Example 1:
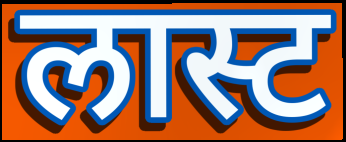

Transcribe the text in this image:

लास्ट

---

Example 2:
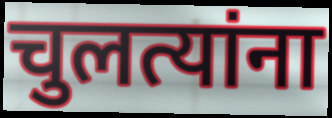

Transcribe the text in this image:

चुलत्यांना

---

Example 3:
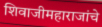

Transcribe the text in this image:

शिवाजीमहाराजांचे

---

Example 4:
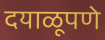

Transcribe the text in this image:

दयाळूपणे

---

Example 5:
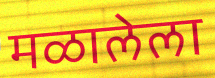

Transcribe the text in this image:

मळालेला